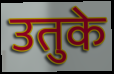
उतुके